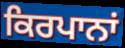
ਕਿਰਪਾਨਾਂ